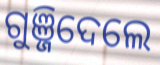
ଗୁଞ୍ଜିଦେଲେ